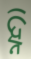
ହ୍ନି